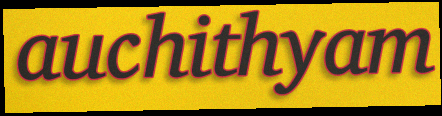
auchithyam